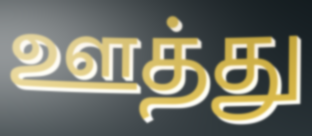
ஊத்து